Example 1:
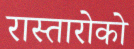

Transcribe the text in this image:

रास्तारोको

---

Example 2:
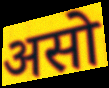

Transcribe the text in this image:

असो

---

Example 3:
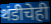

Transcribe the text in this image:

थंडीचेही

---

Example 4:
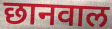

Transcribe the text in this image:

छानवाल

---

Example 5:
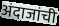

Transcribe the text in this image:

अंदाजांची